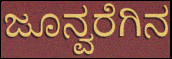
ಜೂನ್ವರೆಗಿನ